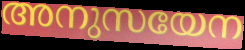
അനുസയേന